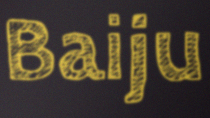
Baiju